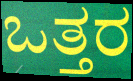
ಒತ್ತರ